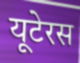
यूटेरस